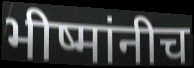
भीष्मांनीच